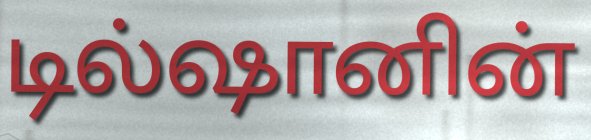
டில்ஷானின்